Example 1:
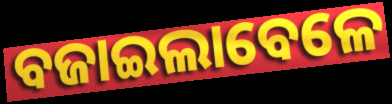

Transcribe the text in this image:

ବଜାଇଲାବେଳେ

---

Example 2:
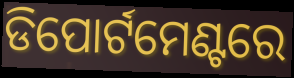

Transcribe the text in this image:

ଡିପୋର୍ଟମେଣ୍ଟରେ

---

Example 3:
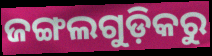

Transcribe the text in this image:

ଜଙ୍ଗଲଗୁଡ଼ିକରୁ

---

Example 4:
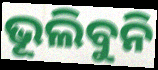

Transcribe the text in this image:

ଭୂଲିବୁନି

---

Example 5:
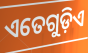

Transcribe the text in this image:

ଏତେଗୁଡ଼ିଏ